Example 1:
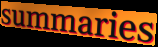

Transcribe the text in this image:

summaries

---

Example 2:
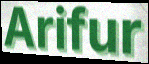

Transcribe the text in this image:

Arifur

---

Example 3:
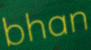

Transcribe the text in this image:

bhan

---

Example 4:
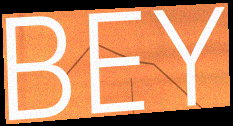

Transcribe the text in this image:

BEY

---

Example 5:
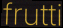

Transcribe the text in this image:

frutti